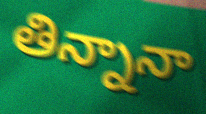
తిన్నానా